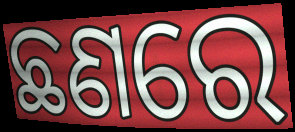
ଛଣରେ